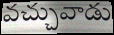
వచ్చువాడు